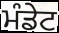
ਮੰਡੇਟ